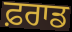
ਫ਼ਰਾਡ